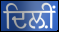
ਦਿਲ਼ੀਂ